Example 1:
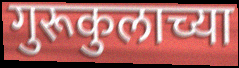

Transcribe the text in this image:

गुरूकुलाच्या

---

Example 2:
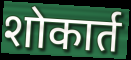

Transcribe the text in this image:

शोकार्त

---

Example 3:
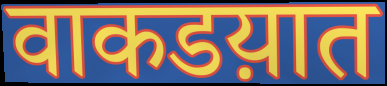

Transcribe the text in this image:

वाकडय़ात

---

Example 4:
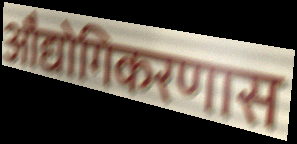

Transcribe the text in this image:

औद्योगिकरणास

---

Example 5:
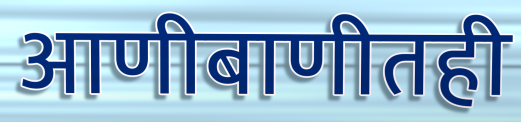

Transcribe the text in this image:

आणीबाणीतही